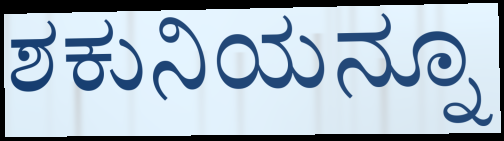
ಶಕುನಿಯನ್ನೂ